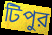
টিপুর